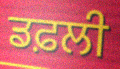
ਡਫ਼ਲੀ